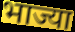
भाज्या